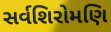
સર્વશિરોમણિ